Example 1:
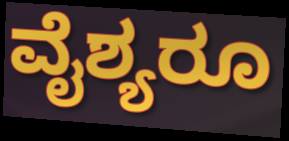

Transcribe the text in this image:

ವೈಶ್ಯರೂ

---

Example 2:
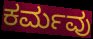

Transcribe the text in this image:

ಕರ್ಮವು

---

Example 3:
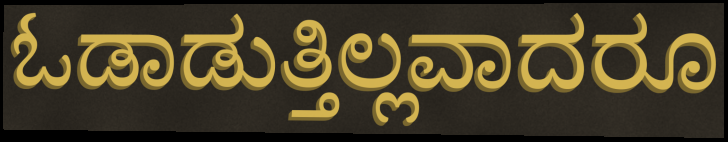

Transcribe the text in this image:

ಓಡಾಡುತ್ತಿಲ್ಲವಾದರೂ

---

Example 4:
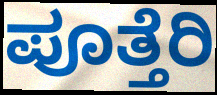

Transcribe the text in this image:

ಪೂತ್ತೆರಿ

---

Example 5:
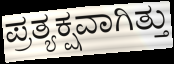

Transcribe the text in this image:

ಪ್ರತ್ಯಕ್ಷವಾಗಿತ್ತು